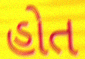
હોત